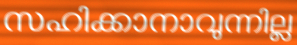
സഹിക്കാനാവുന്നില്ല